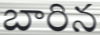
బారిన